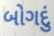
બોગદું